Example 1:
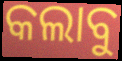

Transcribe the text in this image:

କଲାବୁ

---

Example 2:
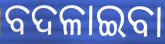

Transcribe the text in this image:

ବଦଳାଇବା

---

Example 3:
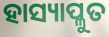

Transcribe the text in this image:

ହାସ୍ୟାପ୍ଳୁତ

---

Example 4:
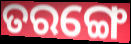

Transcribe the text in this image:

ତରଙ୍ଗେ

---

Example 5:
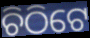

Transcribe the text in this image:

ଚିଠିଟେ